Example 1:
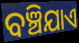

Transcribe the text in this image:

ବଞ୍ଚିଯାଏ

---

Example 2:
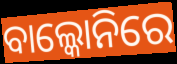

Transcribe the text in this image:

ବାଲ୍କୋନିରେ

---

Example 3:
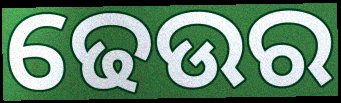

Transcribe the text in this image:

ଢେଉର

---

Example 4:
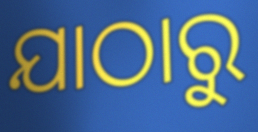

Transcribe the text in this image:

ଯାଠାରୁ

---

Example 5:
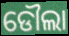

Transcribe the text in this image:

ଡୌଲା